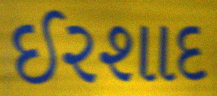
ઈરશાદ